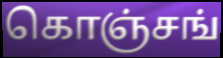
கொஞ்சங்